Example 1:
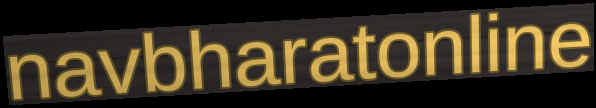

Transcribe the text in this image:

navbharatonline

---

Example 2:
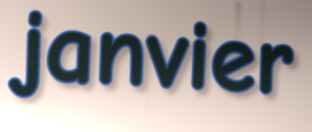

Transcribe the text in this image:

janvier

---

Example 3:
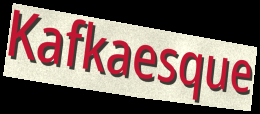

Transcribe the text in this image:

Kafkaesque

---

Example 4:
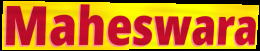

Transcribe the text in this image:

Maheswara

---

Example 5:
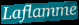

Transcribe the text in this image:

Laflamme